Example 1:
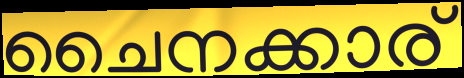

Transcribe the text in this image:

ചൈനക്കാര്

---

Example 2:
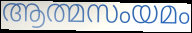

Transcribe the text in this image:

ആത്മസംയമം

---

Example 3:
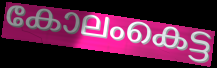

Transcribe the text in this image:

കോലംകെട്ട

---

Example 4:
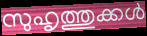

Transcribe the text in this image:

സുഹൃത്തുക്കൾ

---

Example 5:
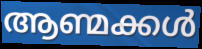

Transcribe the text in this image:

ആണ്മക്കൾ